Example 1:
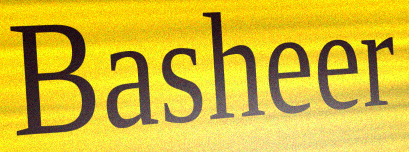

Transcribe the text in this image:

Basheer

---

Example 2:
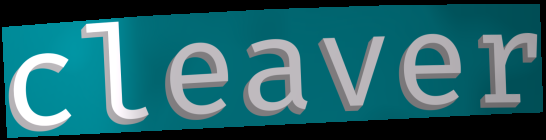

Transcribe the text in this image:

cleaver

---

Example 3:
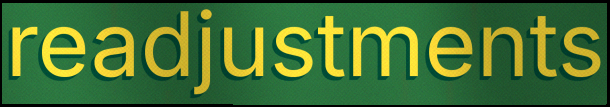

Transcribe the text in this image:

readjustments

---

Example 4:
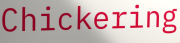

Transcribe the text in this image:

Chickering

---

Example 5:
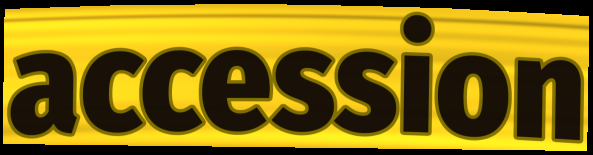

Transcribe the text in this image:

accession